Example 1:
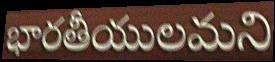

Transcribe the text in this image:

భారతీయులమని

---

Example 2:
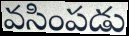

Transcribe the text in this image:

వసింపడు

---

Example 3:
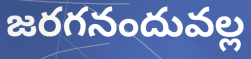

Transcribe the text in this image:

జరగనందువల్ల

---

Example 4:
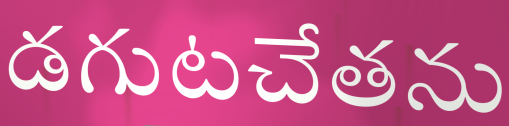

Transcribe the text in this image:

డగుటచేతను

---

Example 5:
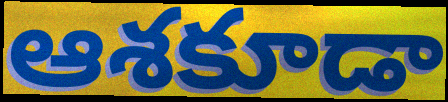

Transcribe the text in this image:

ఆశకూడా